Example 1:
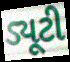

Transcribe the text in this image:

ડ્યૂટી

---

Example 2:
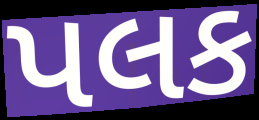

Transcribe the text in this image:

પલક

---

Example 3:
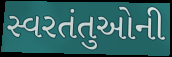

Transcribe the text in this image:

સ્વરતંતુઓની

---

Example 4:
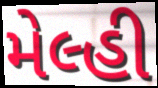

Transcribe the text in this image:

મેલ્હી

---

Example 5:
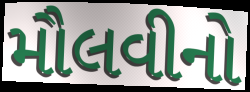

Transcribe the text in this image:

મૌલવીનો